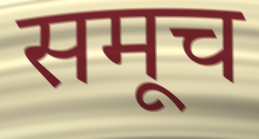
समूच